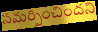
సమర్పించిందని